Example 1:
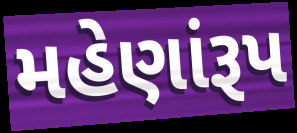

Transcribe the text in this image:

મહેણાંરૂપ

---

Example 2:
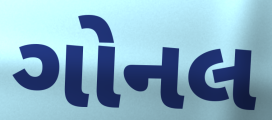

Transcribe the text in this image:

ગોનલ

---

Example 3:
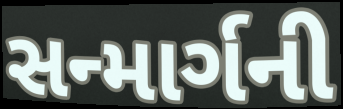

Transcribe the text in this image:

સન્માર્ગની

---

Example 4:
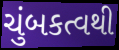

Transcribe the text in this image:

ચુંબકત્વથી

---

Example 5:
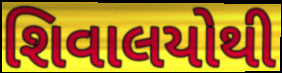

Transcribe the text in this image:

શિવાલયોથી